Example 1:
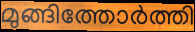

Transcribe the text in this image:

മുങ്ങിത്തോർത്തി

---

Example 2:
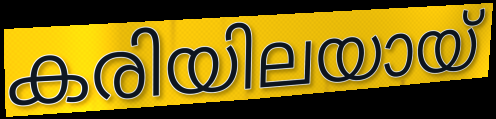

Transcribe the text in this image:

കരിയിലയായ്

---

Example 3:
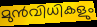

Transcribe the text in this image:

മുൻവിധികളും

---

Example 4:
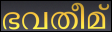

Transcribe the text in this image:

ഭവതീമ്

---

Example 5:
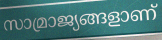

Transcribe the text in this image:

സാമ്രാജ്യങ്ങളാണ്